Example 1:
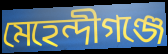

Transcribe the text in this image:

মেহেন্দীগঞ্জে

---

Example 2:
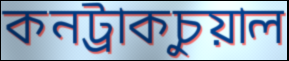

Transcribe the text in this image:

কনট্রাকচুয়াল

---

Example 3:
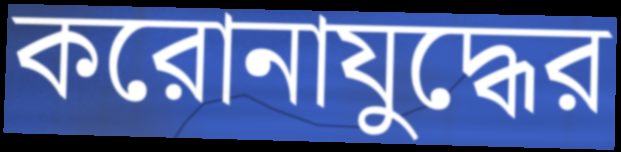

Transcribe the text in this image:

করোনাযুদ্ধের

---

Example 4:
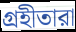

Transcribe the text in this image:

গ্রহীতারা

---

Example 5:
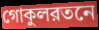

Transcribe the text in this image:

গোকুলরতনে